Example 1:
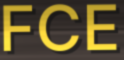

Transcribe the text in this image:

FCE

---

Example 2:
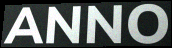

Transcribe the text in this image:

ANNO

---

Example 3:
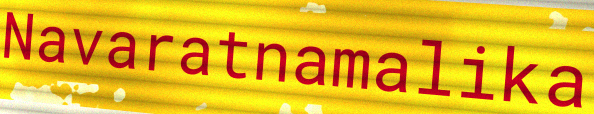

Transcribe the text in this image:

Navaratnamalika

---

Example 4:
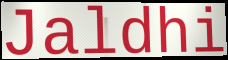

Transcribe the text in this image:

Jaldhi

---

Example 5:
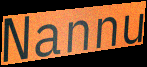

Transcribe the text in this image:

Nannu